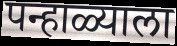
पन्हाळ्याला